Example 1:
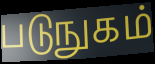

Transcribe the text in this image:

படுநுகம்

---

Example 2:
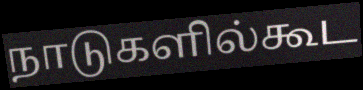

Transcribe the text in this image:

நாடுகளில்கூட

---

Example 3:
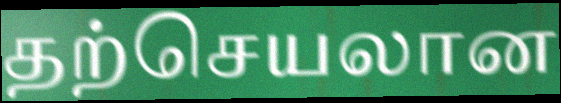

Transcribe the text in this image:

தற்செயலான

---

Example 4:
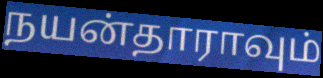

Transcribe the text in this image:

நயன்தாராவும்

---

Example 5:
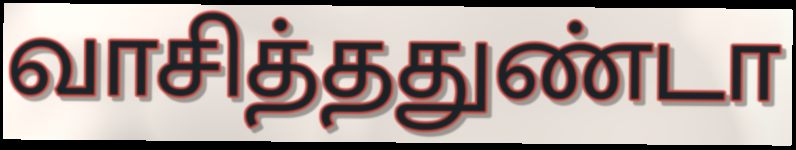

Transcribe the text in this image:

வாசித்ததுண்டா